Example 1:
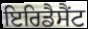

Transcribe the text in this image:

ਇਰਿਡੈਸੈਂਟ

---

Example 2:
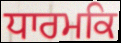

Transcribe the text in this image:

ਧਾਰਮਕਿ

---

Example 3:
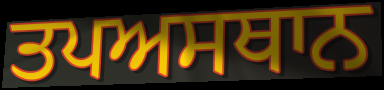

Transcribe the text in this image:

ਤਪਅਸਥਾਨ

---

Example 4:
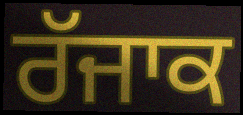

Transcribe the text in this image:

ਰੱਜਾਕ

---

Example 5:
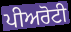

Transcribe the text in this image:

ਪੀਅਰੋਟੀ